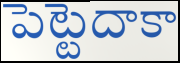
పెట్టెదాకా